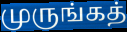
முருங்கத்